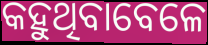
କହୁଥିବାବେଳେ